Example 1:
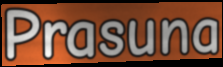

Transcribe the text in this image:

Prasuna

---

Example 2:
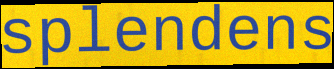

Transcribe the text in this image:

splendens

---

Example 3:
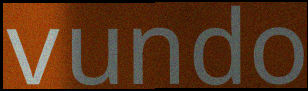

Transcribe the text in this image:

vundo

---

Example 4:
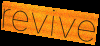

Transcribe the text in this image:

revive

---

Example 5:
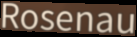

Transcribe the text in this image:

Rosenau